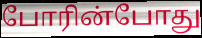
போரின்போது